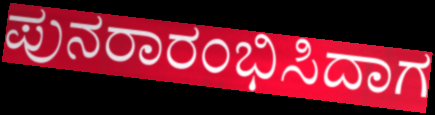
ಪುನರಾರಂಭಿಸಿದಾಗ